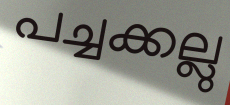
പച്ചക്കല്ലു